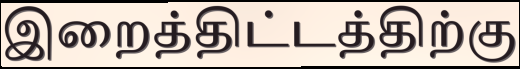
இறைத்திட்டத்திற்கு